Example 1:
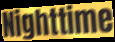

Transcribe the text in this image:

Nighttime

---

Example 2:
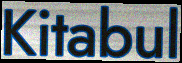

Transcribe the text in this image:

Kitabul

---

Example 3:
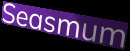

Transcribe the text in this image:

Seasmum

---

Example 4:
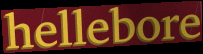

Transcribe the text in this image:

hellebore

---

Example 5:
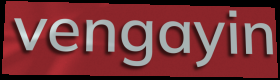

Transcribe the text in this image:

vengayin